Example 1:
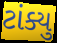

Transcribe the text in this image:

ટાંક્યુ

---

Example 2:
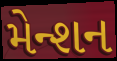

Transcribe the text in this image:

મેન્શન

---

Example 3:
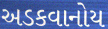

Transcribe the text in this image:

અડકવાનોય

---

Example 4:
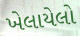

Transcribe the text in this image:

ખેલાયેલો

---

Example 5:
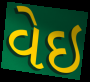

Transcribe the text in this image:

વેઇ